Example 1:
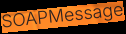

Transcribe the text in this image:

SOAPMessage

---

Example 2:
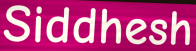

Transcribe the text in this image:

Siddhesh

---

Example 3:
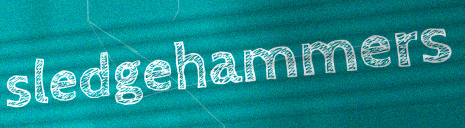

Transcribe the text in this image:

sledgehammers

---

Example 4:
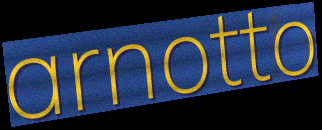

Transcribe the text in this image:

arnotto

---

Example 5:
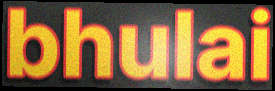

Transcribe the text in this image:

bhulai